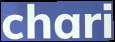
chari